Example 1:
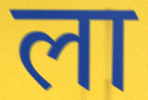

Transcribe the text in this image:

ला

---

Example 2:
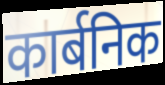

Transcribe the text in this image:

कार्बनिक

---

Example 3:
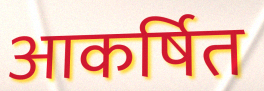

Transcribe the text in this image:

आकर्षित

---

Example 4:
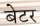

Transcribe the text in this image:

बेटर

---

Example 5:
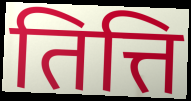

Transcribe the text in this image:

तित्ति